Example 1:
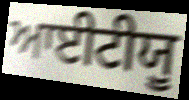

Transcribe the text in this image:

ਆਈਟੀਯੂ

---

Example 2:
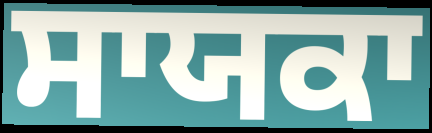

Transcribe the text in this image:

ਸਾਯਕਾ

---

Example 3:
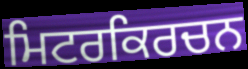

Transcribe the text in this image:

ਮਿਟਰਕਿਰਚਨ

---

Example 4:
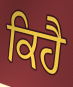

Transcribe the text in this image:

ਕਿਹੈ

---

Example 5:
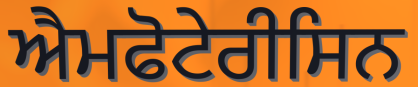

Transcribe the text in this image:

ਐਮਫੋਟੇਰੀਸਿਨ